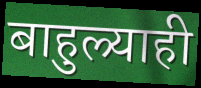
बाहुल्याही